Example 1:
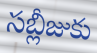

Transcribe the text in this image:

సబ్లీజుకు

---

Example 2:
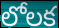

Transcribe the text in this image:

లోలక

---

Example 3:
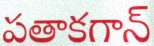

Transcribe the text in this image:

పతాకగాన్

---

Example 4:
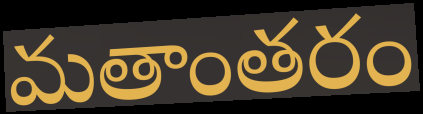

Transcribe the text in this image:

మతాంతరం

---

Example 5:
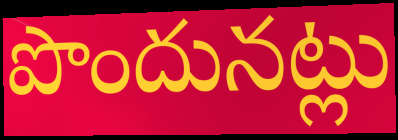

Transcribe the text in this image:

పొందునట్లు